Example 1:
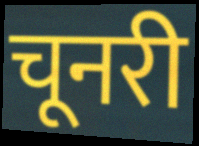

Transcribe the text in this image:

चूनरी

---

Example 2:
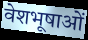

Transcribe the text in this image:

वेशभूषाओं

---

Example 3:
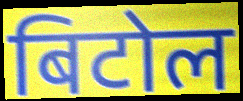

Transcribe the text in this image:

बिटोल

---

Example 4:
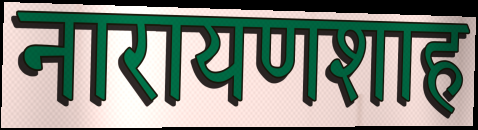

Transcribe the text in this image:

नारायणशाह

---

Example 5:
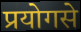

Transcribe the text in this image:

प्रयोगसे